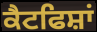
ਕੈਟਫਿਸ਼ਾਂ